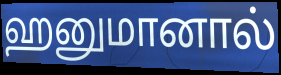
ஹனுமானால்